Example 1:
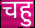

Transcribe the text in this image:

चहु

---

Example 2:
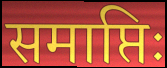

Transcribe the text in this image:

समाप्तिः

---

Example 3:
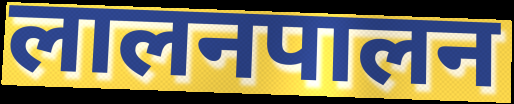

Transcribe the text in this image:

लालनपालन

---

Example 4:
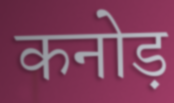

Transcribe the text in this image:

कनोड़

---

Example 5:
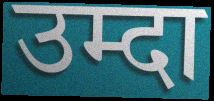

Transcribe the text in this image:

उम्दा